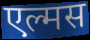
एल्मस